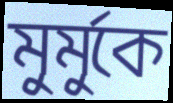
মুর্মুকে